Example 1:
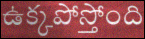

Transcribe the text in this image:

ఉక్కపోస్తోంది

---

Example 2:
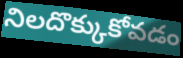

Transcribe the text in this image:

నిలదొక్కుకోవడం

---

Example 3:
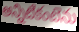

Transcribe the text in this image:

అన్నిటికంటెను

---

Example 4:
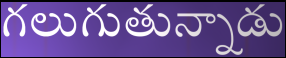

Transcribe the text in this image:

గలుగుతున్నాడు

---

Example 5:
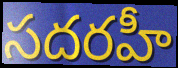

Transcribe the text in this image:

సదరహీ